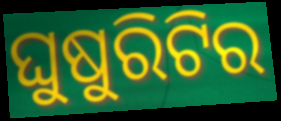
ଘୁଷୁରିଟିର